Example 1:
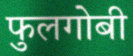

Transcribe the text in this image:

फुलगोबी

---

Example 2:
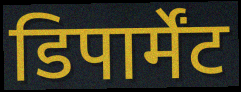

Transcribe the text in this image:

डिपार्मेंट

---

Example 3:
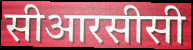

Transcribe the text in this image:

सीआरसीसी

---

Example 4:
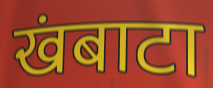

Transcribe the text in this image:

खंबाटा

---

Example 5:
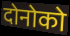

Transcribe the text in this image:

दोनोको